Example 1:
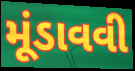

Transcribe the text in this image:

મૂંડાવવી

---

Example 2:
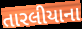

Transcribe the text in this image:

તારલીયાના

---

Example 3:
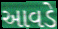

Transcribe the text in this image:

આવડે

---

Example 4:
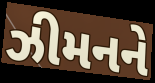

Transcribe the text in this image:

ઝીમનને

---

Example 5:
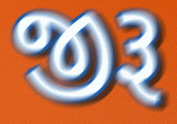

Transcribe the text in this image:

જીરૂ